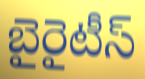
బైరైటీస్